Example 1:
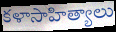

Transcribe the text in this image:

కళాసాహిత్యాలు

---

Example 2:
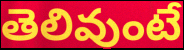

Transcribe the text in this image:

తెలివుంటే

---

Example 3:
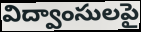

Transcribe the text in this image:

విద్వాంసులపై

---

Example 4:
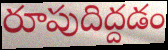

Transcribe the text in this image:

రూపుదిద్దడం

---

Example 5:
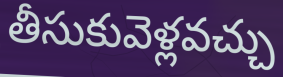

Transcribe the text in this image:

తీసుకువెళ్లవచ్చు